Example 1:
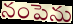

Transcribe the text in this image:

నంపెను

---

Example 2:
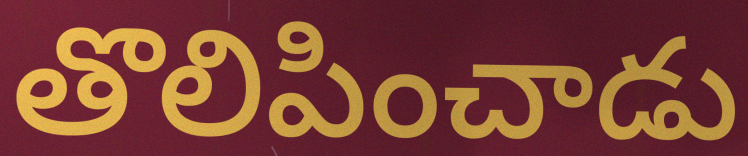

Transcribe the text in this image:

తొలిపించాడు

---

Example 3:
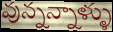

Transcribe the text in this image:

వున్నన్నాళ్ళు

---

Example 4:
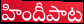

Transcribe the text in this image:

హిందీపాట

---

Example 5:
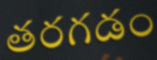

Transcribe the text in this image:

తరగడం